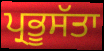
ਪ੍ਰਭੂਸੱਤਾ